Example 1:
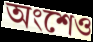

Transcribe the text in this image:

অংশেও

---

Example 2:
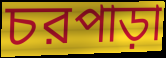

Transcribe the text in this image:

চরপাড়া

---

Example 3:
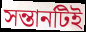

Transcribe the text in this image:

সন্তানটিই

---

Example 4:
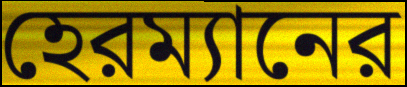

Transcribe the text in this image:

হেরম্যানের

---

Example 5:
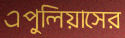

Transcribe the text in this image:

এপুলিয়াসের